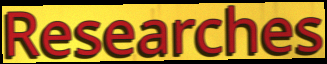
Researches